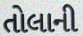
તોલાની